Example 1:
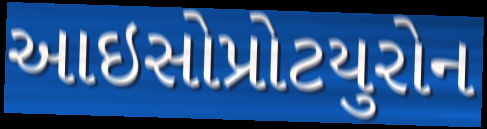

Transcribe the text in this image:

આઇસોપ્રોટયુરોન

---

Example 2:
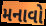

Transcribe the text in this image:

મનાવો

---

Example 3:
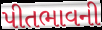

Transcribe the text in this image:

પીતભાવની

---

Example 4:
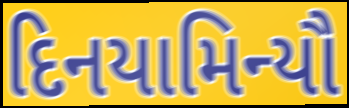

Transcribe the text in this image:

દિનયામિન્યૌ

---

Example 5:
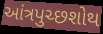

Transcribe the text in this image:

આંત્રપુચ્છશોથ